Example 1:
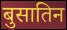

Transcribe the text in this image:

बुसातिन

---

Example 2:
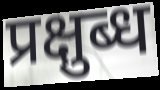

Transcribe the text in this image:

प्रक्षुब्ध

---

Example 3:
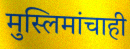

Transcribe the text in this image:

मुस्लिमांचाही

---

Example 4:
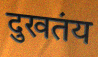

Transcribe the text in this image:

दुखतंय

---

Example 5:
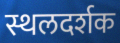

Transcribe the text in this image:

स्थलदर्शक